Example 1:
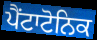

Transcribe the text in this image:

ਪੈਂਟਾਟੋਨਿਕ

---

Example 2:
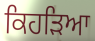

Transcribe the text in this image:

ਕਿਹੜਿਆ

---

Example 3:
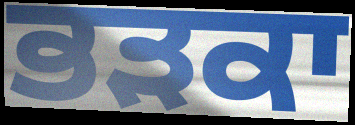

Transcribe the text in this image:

ਭੜਕਾ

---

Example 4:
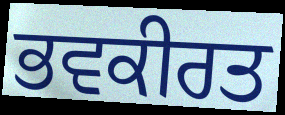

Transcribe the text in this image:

ਭਵਕੀਰਤ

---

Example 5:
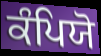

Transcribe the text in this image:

ਕੰਪਿਯੋ